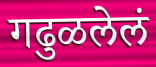
गढुळलेलं